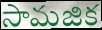
సామజిక